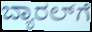
ಬ್ಯಾರಲ್‌ಗೆ